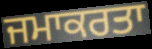
ਜਮਾਕਰਤਾ